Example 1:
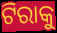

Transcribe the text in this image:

ଟିରାକୁ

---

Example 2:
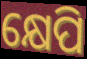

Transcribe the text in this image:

କ୍ଷେପି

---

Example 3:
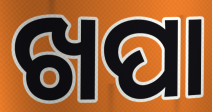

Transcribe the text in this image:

ଖପା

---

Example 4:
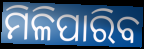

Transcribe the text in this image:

ମିଳିପାରିବ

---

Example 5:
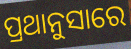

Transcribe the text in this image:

ପ୍ରଥାନୁସାରେ